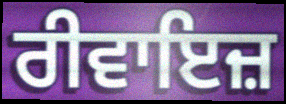
ਰੀਵਾਇਜ਼